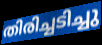
തിരിച്ചടിച്ചു